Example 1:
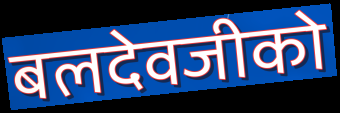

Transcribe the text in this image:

बलदेवजीको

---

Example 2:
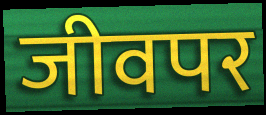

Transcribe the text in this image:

जीवपर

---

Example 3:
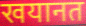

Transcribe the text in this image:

खयानत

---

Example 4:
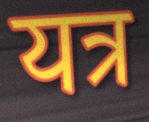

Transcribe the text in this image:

यत्र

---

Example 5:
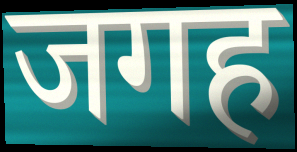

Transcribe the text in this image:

जगह